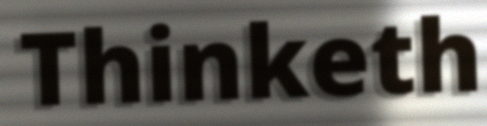
Thinketh